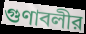
গুণাবলীর